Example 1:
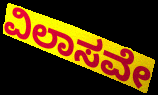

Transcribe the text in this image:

ವಿಲಾಸವೇ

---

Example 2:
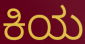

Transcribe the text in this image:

ಕಿಯ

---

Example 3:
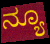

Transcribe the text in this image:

ನ್ಯೂ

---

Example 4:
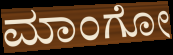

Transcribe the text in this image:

ಮಾಂಗೋ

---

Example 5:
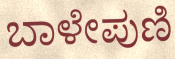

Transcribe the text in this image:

ಬಾಳೇಪುಣಿ